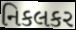
નિકલકર